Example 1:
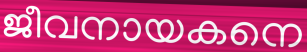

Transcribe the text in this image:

ജീവനായകനെ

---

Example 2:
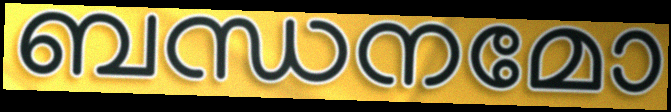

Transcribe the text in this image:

ബന്ധനമോ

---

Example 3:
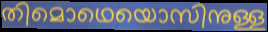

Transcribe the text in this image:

തിമൊഥെയൊസിനുള്ള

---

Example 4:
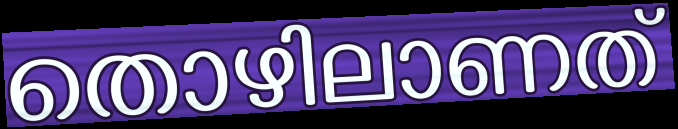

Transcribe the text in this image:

തൊഴിലാണത്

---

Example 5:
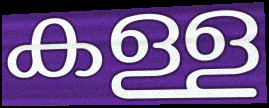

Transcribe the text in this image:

കള്ള